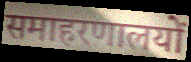
समाहरणालयों